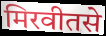
मिरवीतसे